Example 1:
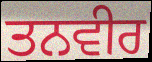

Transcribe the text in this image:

ਤਨਵੀਰ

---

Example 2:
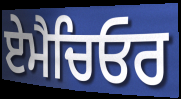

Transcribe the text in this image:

ਏਮੈਚਿਓਰ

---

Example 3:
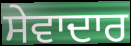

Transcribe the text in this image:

ਸੇਵਾਦਾਰ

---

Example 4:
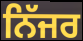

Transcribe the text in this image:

ਨਿੱਜਰ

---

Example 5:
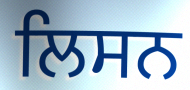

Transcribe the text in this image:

ਲਿਸਨ